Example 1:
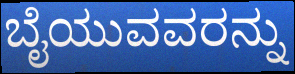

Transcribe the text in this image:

ಬೈಯುವವರನ್ನು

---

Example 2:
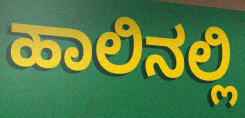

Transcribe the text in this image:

ಹಾಲಿನಲ್ಲಿ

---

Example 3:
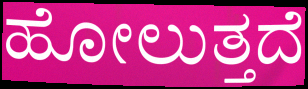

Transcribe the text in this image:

ಹೋಲುತ್ತದೆ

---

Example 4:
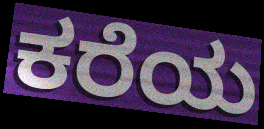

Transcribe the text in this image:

ಕರೆಯ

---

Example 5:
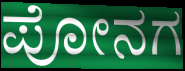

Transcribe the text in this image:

ಪೋನಗ